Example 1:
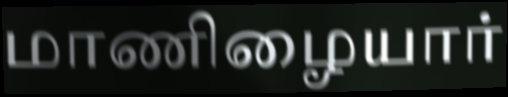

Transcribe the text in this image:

மாணிழையார்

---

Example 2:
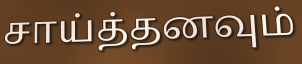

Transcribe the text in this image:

சாய்த்தனவும்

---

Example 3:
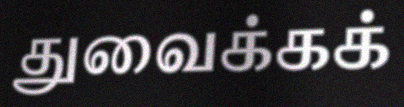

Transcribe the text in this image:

துவைக்கக்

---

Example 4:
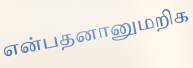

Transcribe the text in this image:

என்பதனானுமறிக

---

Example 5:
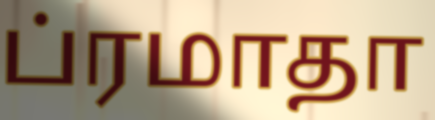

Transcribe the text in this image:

ப்ரமாதா